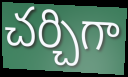
చర్చిగా